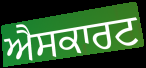
ਐਸਕਾਰਟ